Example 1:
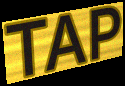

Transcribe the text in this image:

TAP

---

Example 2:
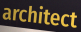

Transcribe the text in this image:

architect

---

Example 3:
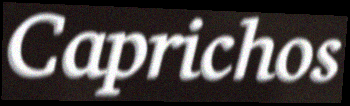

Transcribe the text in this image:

Caprichos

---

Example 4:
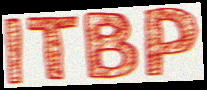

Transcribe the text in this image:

ITBP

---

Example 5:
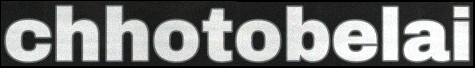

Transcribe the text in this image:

chhotobelai